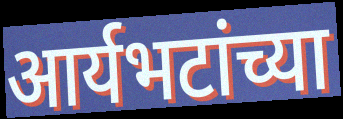
आर्यभटांच्या